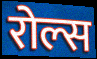
रोल्स